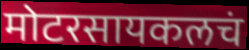
मोटरसायकलचं